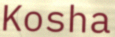
Kosha